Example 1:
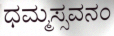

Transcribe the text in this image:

ಧಮ್ಮಸ್ಸವನಂ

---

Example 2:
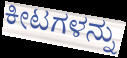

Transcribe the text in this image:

ಕೀಟಗಳನ್ನು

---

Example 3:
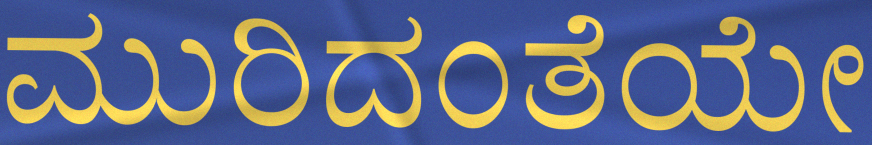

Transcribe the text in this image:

ಮುರಿದಂತೆಯೇ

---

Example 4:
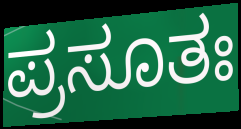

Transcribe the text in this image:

ಪ್ರಸೂತಃ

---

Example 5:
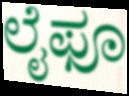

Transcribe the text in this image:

ಲೈಫೂ